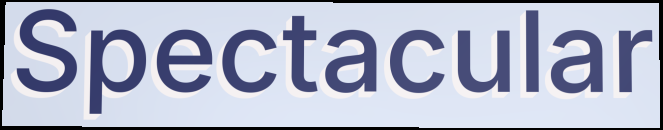
Spectacular